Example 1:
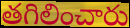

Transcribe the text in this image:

తగిలించారు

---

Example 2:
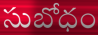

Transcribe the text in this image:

సుబోధం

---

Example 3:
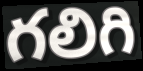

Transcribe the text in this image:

గలిగి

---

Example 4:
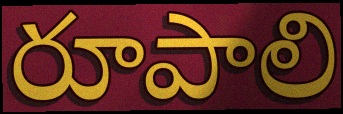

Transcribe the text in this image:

రూపాలి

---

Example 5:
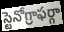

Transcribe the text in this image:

స్టెనోగ్రాఫర్గా